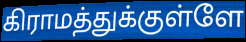
கிராமத்துக்குள்ளே